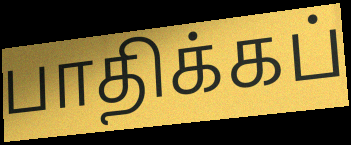
பாதிக்கப்